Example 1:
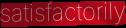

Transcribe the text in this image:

satisfactorily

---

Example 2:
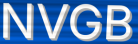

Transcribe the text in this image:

NVGB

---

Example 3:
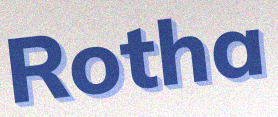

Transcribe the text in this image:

Rotha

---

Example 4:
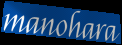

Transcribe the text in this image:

manohara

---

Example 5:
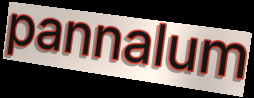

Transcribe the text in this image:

pannalum